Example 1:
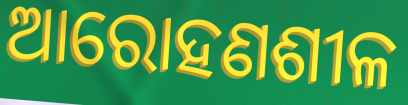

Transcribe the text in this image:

ଆରୋହଣଶୀଳ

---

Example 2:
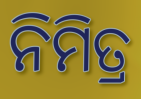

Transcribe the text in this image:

ନିମିତ୍ର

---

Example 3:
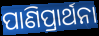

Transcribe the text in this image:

ପାଣିପ୍ରାର୍ଥନା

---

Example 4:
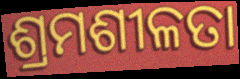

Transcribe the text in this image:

ଶ୍ରମଶୀଳତା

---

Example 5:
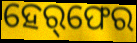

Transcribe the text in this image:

ହେର୍‌ଫେର